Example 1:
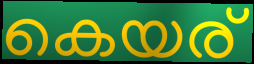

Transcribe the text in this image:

കെയര്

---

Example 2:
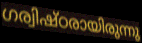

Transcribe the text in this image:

ഗര്വിഷ്ഠരായിരുന്നു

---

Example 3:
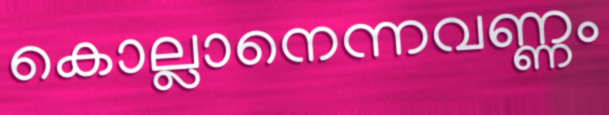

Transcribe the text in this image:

കൊല്ലാനെന്നവണ്ണം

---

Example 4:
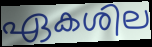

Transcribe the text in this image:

ഏകശില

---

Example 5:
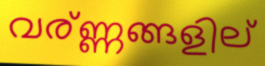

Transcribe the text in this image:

വര്ണ്ണങ്ങളില്